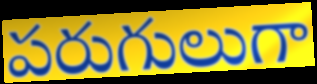
పరుగులుగా